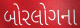
બોરલોગના